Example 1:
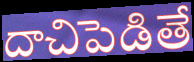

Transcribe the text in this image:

దాచిపెడితే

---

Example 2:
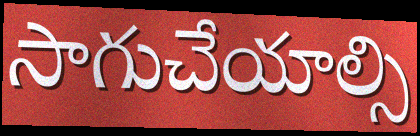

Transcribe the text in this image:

సాగుచేయాల్సి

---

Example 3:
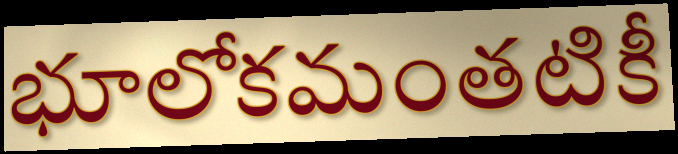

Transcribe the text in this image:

భూలోకమంతటికీ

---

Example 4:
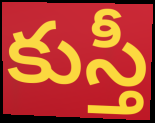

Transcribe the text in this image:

కుస్తీ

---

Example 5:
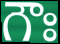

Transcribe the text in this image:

గౌః